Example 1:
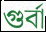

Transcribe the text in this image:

গুর্বা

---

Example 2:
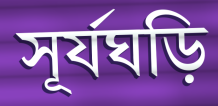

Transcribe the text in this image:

সূর্যঘড়ি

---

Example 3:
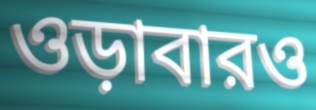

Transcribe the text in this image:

ওড়াবারও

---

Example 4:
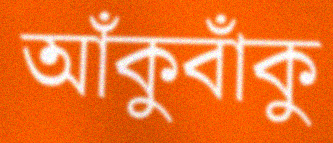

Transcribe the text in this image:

আঁকুবাঁকু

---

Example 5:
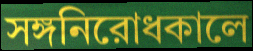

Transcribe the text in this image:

সঙ্গনিরোধকালে